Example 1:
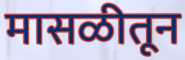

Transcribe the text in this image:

मासळीतून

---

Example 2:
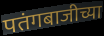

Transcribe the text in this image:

पतंगबाजीच्या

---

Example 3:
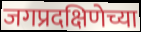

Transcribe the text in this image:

जगप्रदक्षिणेच्या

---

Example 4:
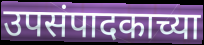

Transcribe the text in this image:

उपसंपादकाच्या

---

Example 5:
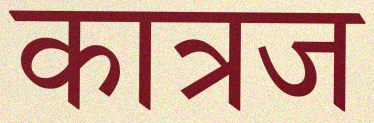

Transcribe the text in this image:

कात्रज